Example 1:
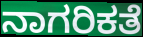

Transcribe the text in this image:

ನಾಗರಿಕತೆ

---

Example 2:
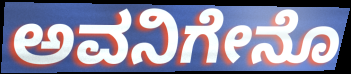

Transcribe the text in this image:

ಅವನಿಗೇನೊ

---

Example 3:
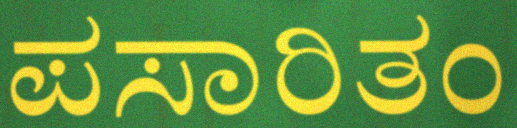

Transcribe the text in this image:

ಪಸಾರಿತಂ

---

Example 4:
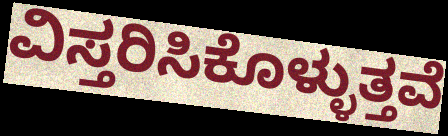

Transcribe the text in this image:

ವಿಸ್ತರಿಸಿಕೊಳ್ಳುತ್ತವೆ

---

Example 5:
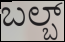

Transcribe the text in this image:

ಬಲ್ಬ್